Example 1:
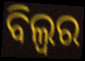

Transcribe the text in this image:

ବିଲ୍ୱର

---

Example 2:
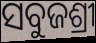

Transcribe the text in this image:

ସବୁଜଶ୍ରୀ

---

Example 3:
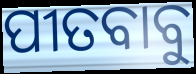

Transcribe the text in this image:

ପୀତବାବୁ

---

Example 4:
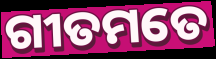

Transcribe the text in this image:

ଗୀତମତେ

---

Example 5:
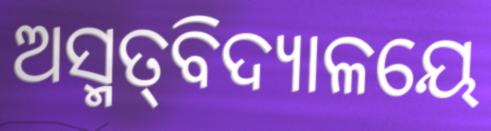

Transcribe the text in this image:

ଅସ୍ମତ୍‌ବିଦ୍ୟାଳୟେ